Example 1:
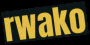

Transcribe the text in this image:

rwako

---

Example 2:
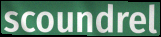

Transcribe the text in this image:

scoundrel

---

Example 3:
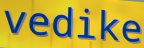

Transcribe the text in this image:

vedike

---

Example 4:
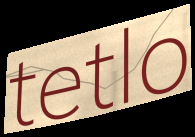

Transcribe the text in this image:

tetlo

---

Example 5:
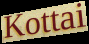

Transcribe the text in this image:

Kottai